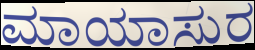
ಮಾಯಾಸುರ